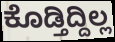
ಕೊಡ್ತಿದ್ದಿಲ್ಲ